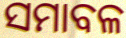
ସମାବଳ